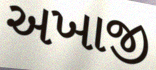
અખાજી